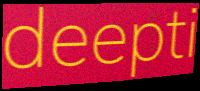
deepti